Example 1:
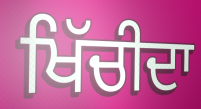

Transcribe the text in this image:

ਖਿੱਚੀਦਾ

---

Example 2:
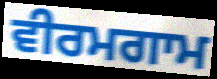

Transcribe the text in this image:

ਵੀਰਮਗਾਮ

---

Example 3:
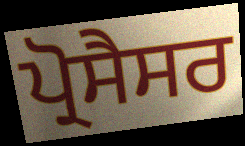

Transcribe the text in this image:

ਪ੍ਰੋਸੈਸਰ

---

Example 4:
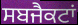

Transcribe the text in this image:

ਸਬਜੈਕਟਾਂ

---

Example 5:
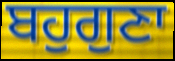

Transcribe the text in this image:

ਬਹੁਗੁਣਾ